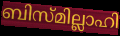
ബിസ്മില്ലാഹി